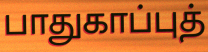
பாதுகாப்புத்